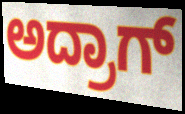
ಅದ್ರಾಗ್